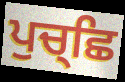
ਪੁਚ੍ਛਿ